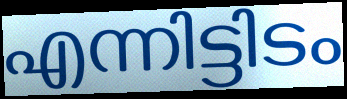
എന്നിട്ടിടം